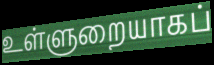
உள்ளுறையாகப்